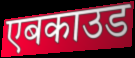
एबकाउड